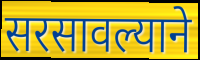
सरसावल्याने